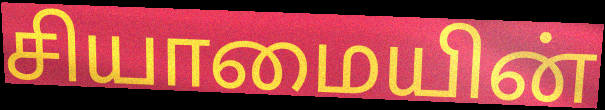
சியாமையின்